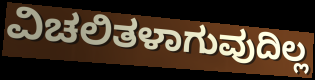
ವಿಚಲಿತಳಾಗುವುದಿಲ್ಲ